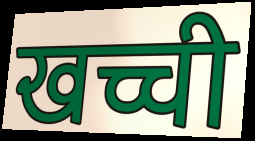
खच्ची